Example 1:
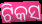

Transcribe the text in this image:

ଟିକସ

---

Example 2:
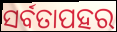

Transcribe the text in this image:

ସର୍ବତାପହର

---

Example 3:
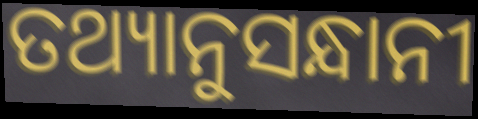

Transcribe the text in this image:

ତଥ୍ୟାନୁସନ୍ଧାନୀ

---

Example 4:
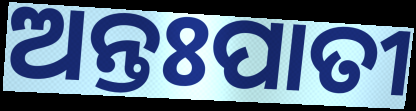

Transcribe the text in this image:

ଅନ୍ତଃପାତୀ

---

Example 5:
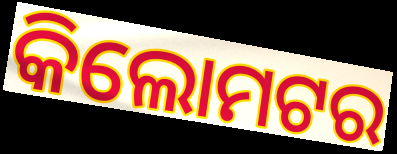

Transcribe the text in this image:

କିଲୋମଟର